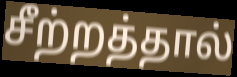
சீற்றத்தால்